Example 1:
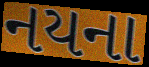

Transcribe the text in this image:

નયના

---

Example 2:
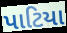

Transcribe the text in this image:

પાટિયા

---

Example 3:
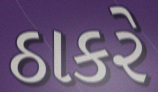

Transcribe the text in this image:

ઠાકરે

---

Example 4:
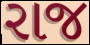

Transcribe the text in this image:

રાજ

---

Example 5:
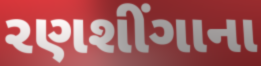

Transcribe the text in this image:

રણશીંગાના